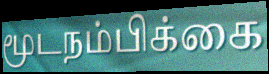
மூடநம்பிக்கை